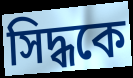
সিদ্ধকে